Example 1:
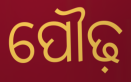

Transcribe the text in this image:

ପୌଢ଼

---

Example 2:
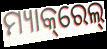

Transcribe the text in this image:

ମ୍ୟାକ୍‌ରେଲ୍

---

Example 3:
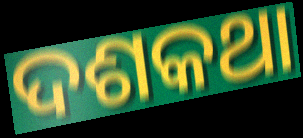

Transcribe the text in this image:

ଦଶକଥା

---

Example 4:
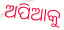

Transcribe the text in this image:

ଅପିଆକୁ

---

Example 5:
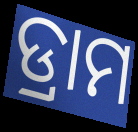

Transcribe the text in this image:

ଡ୍ରାମ